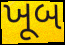
ખૂબ